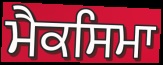
ਮੈਕਸਿਮਾ